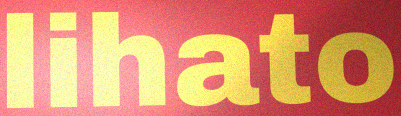
lihato